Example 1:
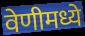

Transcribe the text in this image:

वेणीमध्ये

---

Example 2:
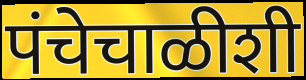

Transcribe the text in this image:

पंचेचाळीशी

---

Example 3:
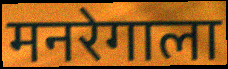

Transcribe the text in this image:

मनरेगाला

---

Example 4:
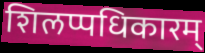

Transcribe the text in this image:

शिलप्पधिकारम्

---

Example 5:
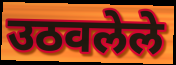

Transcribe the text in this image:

उठवलेले